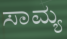
ಸಾಮ್ಯ